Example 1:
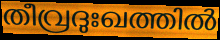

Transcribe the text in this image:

തീവ്രദുഃഖത്തിൽ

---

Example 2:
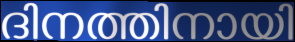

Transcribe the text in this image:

ദിനത്തിനായി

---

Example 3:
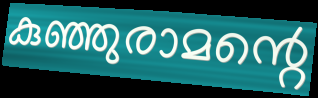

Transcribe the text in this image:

കുഞ്ഞുരാമന്റെ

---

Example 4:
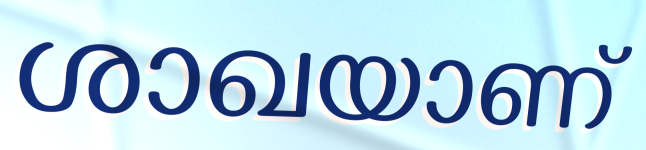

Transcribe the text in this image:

ശാഖയാണ്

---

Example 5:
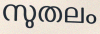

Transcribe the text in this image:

സുതലം